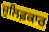
ਜ਼ੁਲਿਫ਼ਕਾਰ